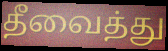
தீவைத்து